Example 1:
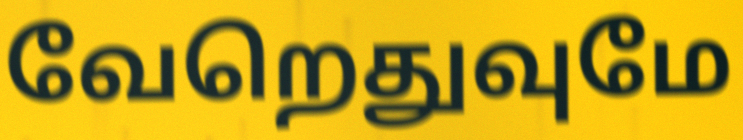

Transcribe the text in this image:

வேறெதுவுமே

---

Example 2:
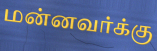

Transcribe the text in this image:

மன்னவர்க்கு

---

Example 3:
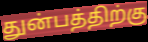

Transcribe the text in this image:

துன்பத்திற்கு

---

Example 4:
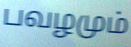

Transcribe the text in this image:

பவழமும்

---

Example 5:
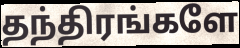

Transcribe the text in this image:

தந்திரங்களே